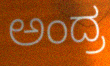
ಅಂದ್ರ